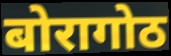
बोरागोठ